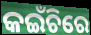
କଇଁଚିରେ